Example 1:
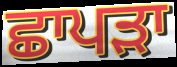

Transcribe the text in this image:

ਛਾਪੜਾ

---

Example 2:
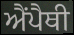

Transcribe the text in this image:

ਐਂਪੈਥੀ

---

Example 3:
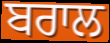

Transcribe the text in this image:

ਬਰਾਲ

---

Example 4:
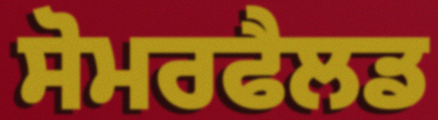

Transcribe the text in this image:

ਸੋਮਰਫੈਲਡ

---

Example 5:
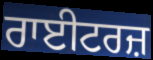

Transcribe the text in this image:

ਰਾਈਟਰਜ਼